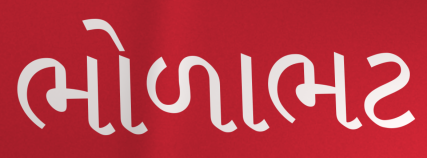
ભોળાભટ